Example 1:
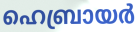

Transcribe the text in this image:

ഹെബ്രായർ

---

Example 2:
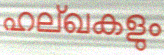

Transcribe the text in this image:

ഹല്ഖകളും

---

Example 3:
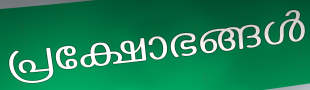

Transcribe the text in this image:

പ്രക്ഷോഭങ്ങൾ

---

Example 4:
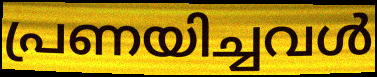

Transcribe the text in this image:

പ്രണയിച്ചവൾ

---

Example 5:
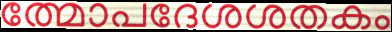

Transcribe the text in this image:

ത്മോപദേശശതകം